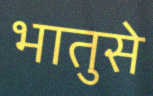
भातुसे